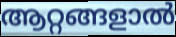
ആറ്റങ്ങളാൽ